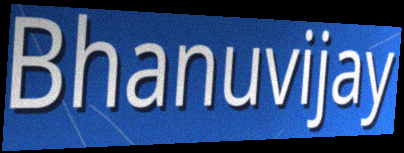
Bhanuvijay